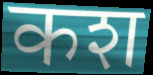
कश